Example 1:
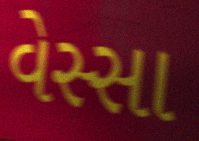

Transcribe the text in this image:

વેસ્સા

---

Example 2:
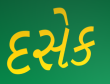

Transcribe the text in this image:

દસેક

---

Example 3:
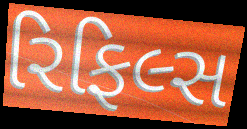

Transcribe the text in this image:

રિફિલ્સ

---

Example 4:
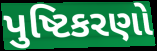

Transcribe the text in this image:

પુષ્ટિકરણો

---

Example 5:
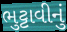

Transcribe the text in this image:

ભુટ્ટાવીનું